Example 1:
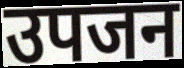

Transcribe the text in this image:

उपजन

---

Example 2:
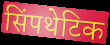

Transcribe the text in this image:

सिंपथेटिक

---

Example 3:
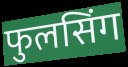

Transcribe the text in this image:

फुलसिंग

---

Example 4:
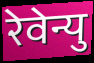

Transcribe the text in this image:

रेवेन्यु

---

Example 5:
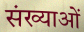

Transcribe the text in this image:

संख्याओं